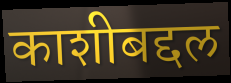
काशीबद्दल